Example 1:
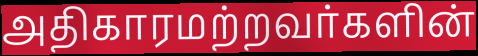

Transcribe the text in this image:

அதிகாரமற்றவர்களின்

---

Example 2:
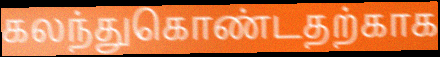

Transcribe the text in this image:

கலந்துகொண்டதற்காக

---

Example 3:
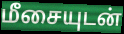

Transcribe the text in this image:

மீசையுடன்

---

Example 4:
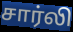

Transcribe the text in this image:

சார்லி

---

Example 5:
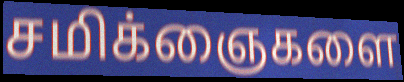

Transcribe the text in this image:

சமிக்ஞைகளை